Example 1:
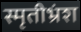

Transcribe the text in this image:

स्मृतीभ्रंश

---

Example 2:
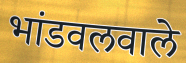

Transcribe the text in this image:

भांडवलवाले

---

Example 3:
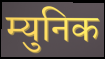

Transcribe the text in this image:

म्युनिक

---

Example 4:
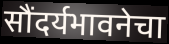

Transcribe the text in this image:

सौंदर्यभावनेचा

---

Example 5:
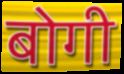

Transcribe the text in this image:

बोगी